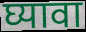
घ्यावा